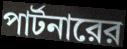
পার্টনারের